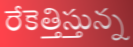
రేకెత్తిస్తున్న